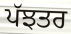
ਪੱਝਤਰ